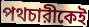
পথচারীকেই